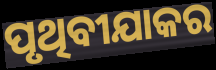
ପୃଥିବୀଯାକର